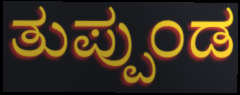
ತುಪ್ಪುಂಡ